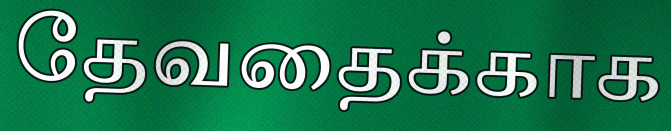
தேவதைக்காக